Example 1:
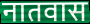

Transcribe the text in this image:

नातवास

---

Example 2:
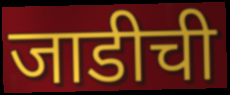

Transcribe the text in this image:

जाडीची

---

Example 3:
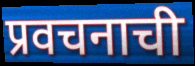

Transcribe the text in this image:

प्रवचनाची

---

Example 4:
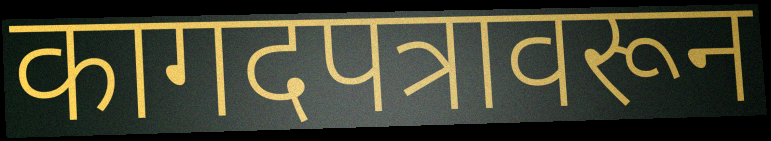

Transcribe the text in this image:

कागदपत्रावरून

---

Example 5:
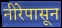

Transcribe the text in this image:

नीरेपासून